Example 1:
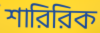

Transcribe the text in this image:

শারিরিক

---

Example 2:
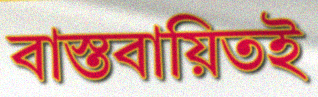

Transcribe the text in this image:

বাস্তবায়িতই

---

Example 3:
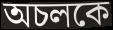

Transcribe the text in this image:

অচলকে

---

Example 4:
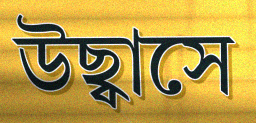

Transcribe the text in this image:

উছ্বাসে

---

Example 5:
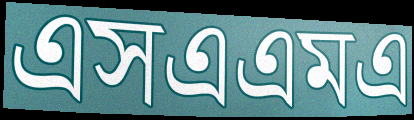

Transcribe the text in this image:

এসএএমএ